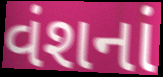
વંશનાં